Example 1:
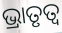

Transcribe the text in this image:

ଭ୍ରାତୃତ୍ଵ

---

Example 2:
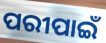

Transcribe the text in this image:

ପରୀପାଇଁ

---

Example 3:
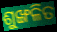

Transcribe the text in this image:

ଶୁଙ୍ଖଳିତ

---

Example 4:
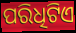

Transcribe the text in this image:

ପରିଧିଟିଏ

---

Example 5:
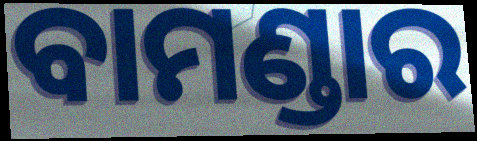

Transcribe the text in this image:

ବାମଣ୍ଡାର